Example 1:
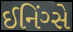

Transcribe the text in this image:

ઈનિંગ્સે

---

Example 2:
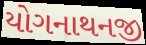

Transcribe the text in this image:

યોગનાથનજી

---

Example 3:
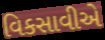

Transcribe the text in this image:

વિકસાવીએ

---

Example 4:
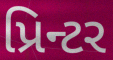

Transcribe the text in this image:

પ્રિન્ટર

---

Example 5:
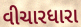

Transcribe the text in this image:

વીચારધારા